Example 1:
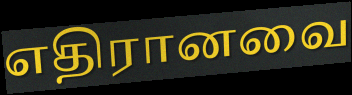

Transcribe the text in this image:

எதிரானவை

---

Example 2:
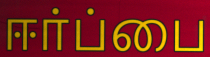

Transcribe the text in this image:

ஈர்ப்பை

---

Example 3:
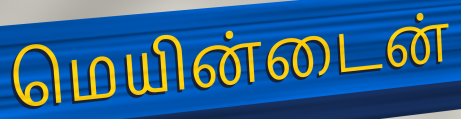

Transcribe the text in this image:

மெயின்டைன்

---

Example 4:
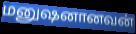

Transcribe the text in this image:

மனுஷனானவன்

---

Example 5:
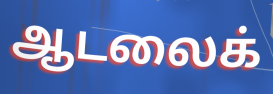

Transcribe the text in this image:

ஆடலைக்